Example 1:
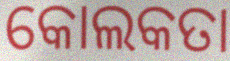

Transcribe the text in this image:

କୋଲକତା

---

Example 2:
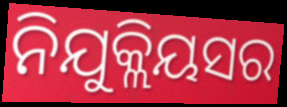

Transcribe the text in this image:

ନିଯୁକ୍ଲିୟସର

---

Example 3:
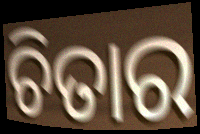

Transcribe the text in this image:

ଚିତାର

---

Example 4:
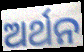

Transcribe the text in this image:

ଅର୍ଥନ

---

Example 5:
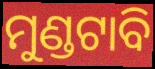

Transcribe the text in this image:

ମୁଣ୍ଡଟାବି